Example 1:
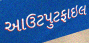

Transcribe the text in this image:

આઉટપુટફાઇલ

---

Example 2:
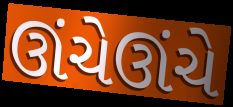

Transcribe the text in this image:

ઊંચેઊંચે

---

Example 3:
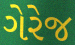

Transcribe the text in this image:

ગેરેજ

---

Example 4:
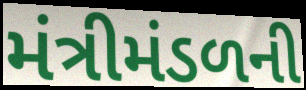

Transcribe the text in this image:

મંત્રીમંડળની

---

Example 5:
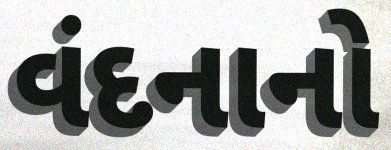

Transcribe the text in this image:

વંદનાનો